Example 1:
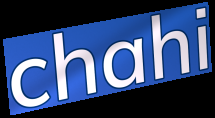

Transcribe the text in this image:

chahi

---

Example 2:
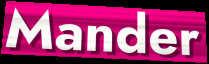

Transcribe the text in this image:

Mander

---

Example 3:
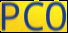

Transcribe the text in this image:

PCO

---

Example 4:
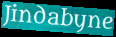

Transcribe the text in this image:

Jindabyne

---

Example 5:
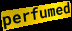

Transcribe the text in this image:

perfumed